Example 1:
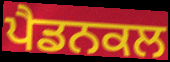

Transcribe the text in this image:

ਪੈਡਨਕਲ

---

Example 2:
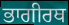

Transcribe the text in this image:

ਭਾਗੀਰਥ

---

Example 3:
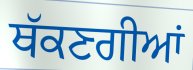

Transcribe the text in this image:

ਥੱਕਣਗੀਆਂ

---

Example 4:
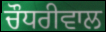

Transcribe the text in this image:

ਚੌਧਰੀਵਾਲ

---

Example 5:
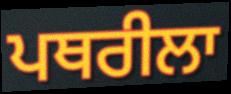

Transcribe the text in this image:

ਪਥਰੀਲਾ